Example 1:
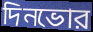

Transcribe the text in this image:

দিনভোর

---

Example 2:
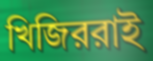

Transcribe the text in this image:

খিজিররাই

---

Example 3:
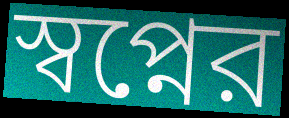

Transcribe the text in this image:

স্বপ্নের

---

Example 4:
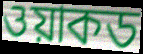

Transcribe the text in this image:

ওয়াকড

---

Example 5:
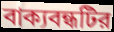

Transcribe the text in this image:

বাক্যবন্ধটির